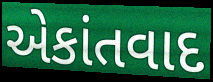
એકાંતવાદ